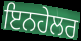
ਇਨਹੇਲਰ